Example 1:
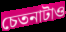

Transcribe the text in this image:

চেতনাটাও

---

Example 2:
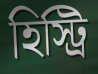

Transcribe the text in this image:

হিস্ট্রি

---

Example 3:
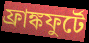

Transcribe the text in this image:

ফ্রাঙ্কফুর্টে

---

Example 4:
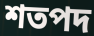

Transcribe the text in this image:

শতপদ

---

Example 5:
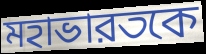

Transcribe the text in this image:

মহাভারতকে